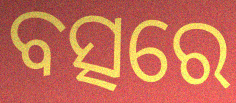
ବତ୍ସରେ